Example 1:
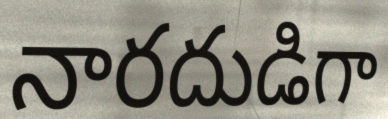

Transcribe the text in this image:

నారదుడిగా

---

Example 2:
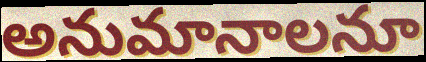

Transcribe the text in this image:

అనుమానాలనూ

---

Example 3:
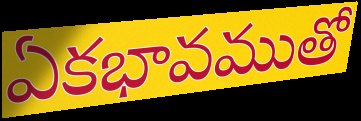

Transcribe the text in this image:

ఏకభావముతో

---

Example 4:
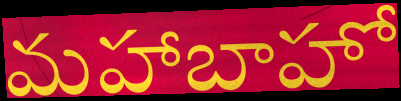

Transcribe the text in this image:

మహాబాహో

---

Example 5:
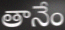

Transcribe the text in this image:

తానేం